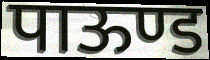
पाऊण्ड